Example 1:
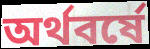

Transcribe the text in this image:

অর্থবর্ষে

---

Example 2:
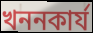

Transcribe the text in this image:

খননকার্য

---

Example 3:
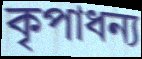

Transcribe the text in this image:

কৃপাধন্য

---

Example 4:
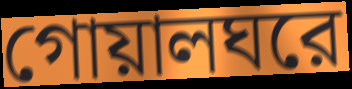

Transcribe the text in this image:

গোয়ালঘরে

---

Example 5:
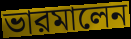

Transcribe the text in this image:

ভারমালেন